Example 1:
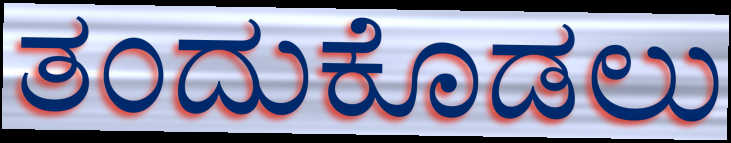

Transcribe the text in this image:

ತಂದುಕೊಡಲು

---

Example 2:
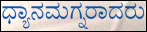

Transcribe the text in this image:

ಧ್ಯಾನಮಗ್ನರಾದರು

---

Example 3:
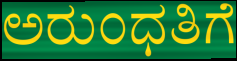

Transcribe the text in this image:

ಅರುಂಧತಿಗೆ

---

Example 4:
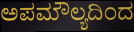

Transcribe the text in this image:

ಅಪಮೌಲ್ಯದಿಂದ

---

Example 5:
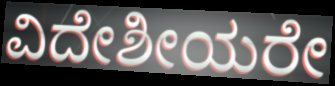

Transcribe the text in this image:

ವಿದೇಶೀಯರೇ